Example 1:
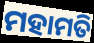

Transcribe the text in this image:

ମହାମତି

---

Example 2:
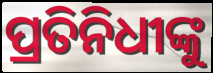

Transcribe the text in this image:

ପ୍ରତିନିଧୀଙ୍କୁ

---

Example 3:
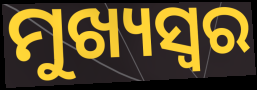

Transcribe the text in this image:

ମୁଖ୍ୟସ୍ୱର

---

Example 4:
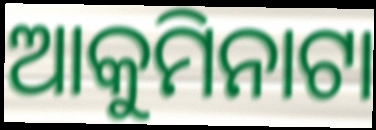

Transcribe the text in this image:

ଆକୁମିନାଟା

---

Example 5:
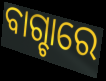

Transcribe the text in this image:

ବାଗ୍ଚାରେ